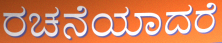
ರಚನೆಯಾದರೆ